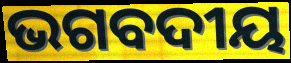
ଭଗବଦୀୟ